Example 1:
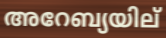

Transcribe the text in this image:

അറേബ്യയില്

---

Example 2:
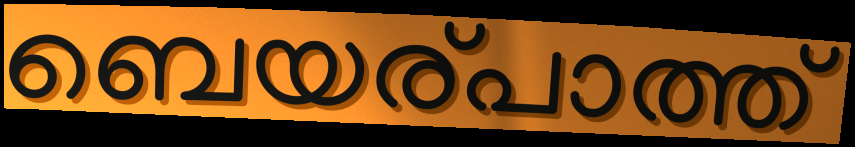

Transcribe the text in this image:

ബെയര്പാത്ത്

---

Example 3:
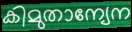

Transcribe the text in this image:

കിമുതാന്യേന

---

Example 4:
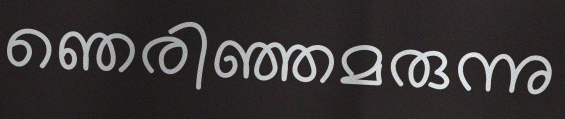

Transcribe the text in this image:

ഞെരിഞ്ഞമരുന്നു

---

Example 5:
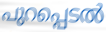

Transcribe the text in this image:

പുറപ്പെടൽ